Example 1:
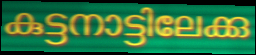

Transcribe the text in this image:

കുട്ടനാട്ടിലേക്കു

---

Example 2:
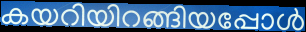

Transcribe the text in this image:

കയറിയിറങ്ങിയപ്പോൾ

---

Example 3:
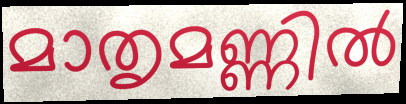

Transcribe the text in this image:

മാതൃമണ്ണിൽ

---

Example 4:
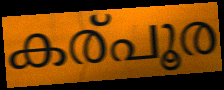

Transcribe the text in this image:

കര്പൂര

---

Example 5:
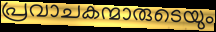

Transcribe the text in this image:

പ്രവാചകന്മാരുടെയും